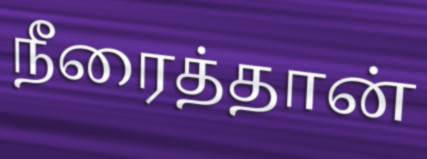
நீரைத்தான்